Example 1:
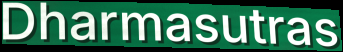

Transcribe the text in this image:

Dharmasutras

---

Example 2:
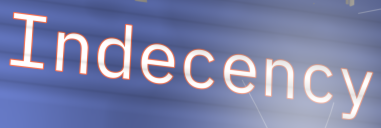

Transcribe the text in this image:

Indecency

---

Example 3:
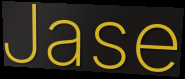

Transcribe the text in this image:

Jase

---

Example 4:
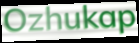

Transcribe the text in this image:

Ozhukap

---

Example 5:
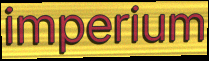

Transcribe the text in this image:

imperium